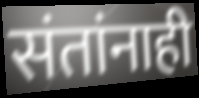
संतांनाही